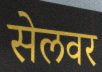
सेलवर